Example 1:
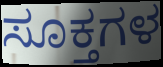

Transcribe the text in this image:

ಸೂಕ್ತಗಳ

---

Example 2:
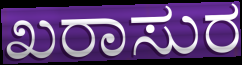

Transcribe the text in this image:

ಖರಾಸುರ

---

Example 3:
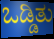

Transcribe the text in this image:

ಒಡ್ಡಿತು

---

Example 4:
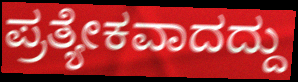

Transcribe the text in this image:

ಪ್ರತ್ಯೇಕವಾದದ್ದು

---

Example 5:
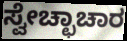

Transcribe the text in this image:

ಸ್ವೇಚ್ಛಾಚಾರ